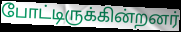
போட்டிருக்கின்றனர்